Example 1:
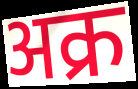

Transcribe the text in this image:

अक्र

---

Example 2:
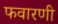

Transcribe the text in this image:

फवारणी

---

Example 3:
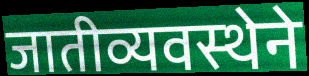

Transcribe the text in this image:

जातीव्यवस्थेने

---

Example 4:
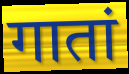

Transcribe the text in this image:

गातां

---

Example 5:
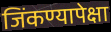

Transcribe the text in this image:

जिंकण्यापेक्षा